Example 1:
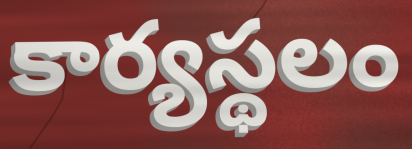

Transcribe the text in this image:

కార్యస్థలం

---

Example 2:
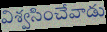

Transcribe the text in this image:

విశ్వసించేవాడు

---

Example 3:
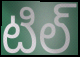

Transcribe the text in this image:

టిల్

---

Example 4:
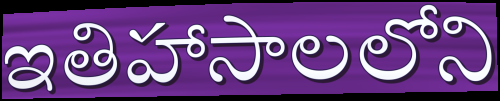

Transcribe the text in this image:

ఇతిహాసాలలోని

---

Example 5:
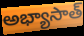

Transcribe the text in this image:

అభ్యాసాత్